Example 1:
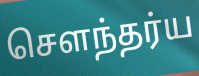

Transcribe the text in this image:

செளந்தர்ய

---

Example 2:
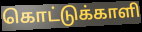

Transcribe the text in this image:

கொட்டுக்காளி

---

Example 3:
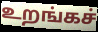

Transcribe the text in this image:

உறங்கச்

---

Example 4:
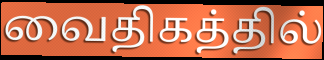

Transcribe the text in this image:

வைதிகத்தில்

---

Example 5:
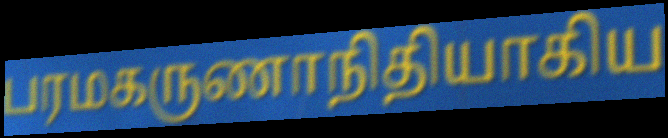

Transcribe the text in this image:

பரமகருணாநிதியாகிய